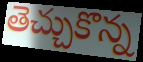
తెచ్చుకొన్న